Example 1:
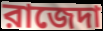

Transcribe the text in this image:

রাজেদা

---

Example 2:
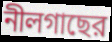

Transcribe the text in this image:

নীলগাছের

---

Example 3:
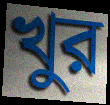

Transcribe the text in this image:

খুর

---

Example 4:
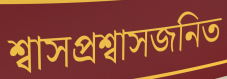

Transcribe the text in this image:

শ্বাসপ্রশ্বাসজনিত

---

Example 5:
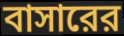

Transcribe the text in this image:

বাসারের